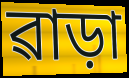
ৱাড়া